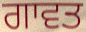
ਗਾਵਤ